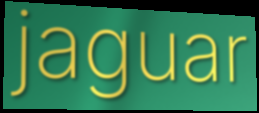
jaguar